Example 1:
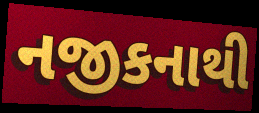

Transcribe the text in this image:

નજીકનાથી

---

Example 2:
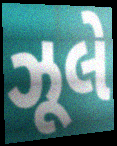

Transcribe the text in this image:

ઝૂલે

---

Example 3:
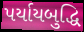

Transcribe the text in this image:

પર્યાયબુદ્ધિ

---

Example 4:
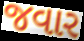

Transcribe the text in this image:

જવાર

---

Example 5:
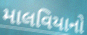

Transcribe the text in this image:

માલવિયાનો